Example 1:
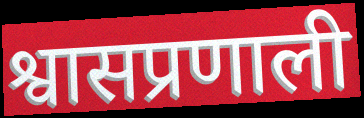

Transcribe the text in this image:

श्वासप्रणाली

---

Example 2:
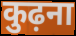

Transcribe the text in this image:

कुढ़ना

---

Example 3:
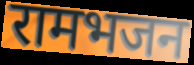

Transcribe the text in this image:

रामभजन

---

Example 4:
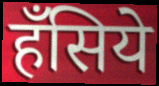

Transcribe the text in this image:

हँसिये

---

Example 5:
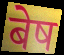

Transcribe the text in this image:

बेष